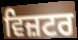
ਵਿਜ਼ਟਰ